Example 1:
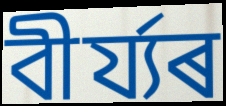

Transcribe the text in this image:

বীৰ্য্যৰ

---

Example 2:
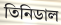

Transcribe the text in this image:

তিনিডাল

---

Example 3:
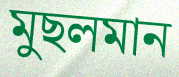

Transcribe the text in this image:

মুছলমান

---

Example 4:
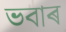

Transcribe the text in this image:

ভবাৰ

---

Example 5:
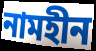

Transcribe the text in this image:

নামহীন